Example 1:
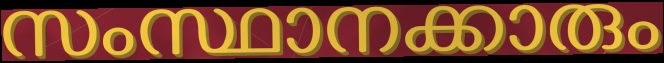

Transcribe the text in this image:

സംസ്ഥാനക്കാരും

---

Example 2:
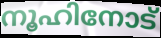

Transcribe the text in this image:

നൂഹിനോട്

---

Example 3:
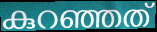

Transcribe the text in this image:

കുറഞ്ഞത്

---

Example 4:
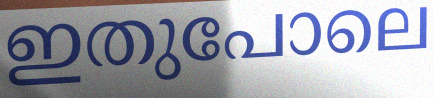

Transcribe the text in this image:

ഇതുപോലെ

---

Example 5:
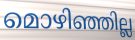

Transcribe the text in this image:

മൊഴിഞ്ഞില്ല